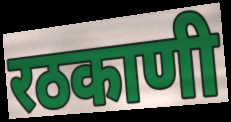
रठकाणी